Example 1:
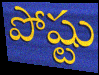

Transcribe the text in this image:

పోష్టు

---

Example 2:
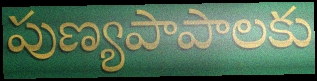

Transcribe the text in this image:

పుణ్యపాపాలకు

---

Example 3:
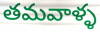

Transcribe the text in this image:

తమవాళ్ళ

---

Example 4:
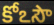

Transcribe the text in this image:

కోఽసౌ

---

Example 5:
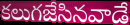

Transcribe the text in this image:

కలుగజేసినవాడే